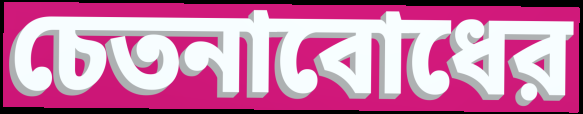
চেতনাবোধের